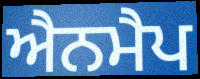
ਐਨਮੈਪ